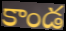
కాండ